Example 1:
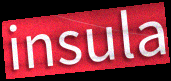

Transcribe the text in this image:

insula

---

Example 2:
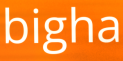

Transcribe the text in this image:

bigha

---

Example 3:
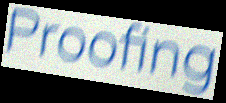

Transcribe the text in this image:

Proofing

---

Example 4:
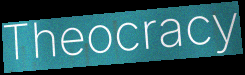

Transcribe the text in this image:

Theocracy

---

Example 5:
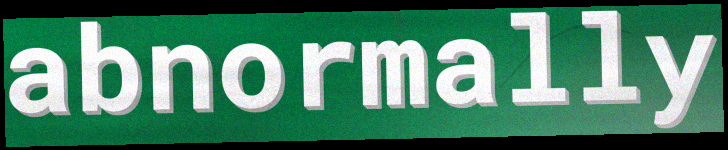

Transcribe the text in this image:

abnormally